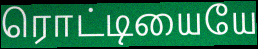
ரொட்டியையே